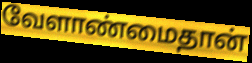
வேளாண்மைதான்